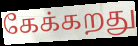
கேக்கறது